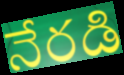
నేరడి